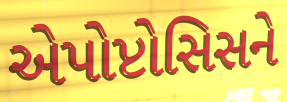
એપોપ્ટોસિસને